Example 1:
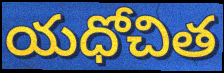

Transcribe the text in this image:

యధోచిత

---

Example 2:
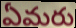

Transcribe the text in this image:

ఏమరు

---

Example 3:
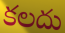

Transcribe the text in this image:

కలదు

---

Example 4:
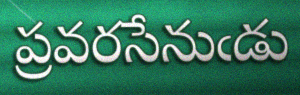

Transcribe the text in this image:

ప్రవరసేనుఁడు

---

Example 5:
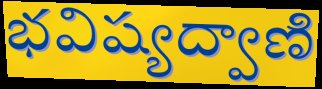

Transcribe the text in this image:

భవిష్యద్వాణి